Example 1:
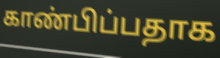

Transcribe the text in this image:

காண்பிப்பதாக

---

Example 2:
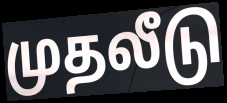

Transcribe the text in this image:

முதலீடு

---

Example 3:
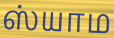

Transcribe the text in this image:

ஸ்யாம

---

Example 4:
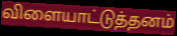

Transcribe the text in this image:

விளையாட்டுத்தனம்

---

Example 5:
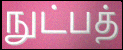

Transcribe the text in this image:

நுட்பத்